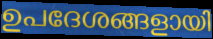
ഉപദേശങ്ങളായി